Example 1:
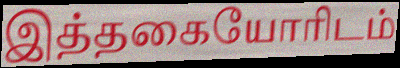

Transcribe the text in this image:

இத்தகையோரிடம்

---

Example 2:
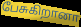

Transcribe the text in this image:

பேசுகிறானா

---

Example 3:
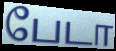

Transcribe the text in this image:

பேடா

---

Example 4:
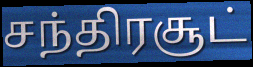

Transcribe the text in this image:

சந்திரசூட்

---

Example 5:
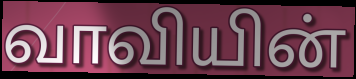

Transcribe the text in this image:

வாவியின்